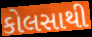
કોલસાથી